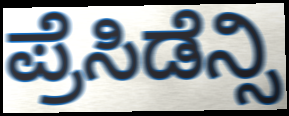
ಪ್ರೆಸಿಡೆನ್ಸಿ